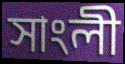
সাংলী